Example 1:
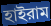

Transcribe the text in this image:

হাইরাম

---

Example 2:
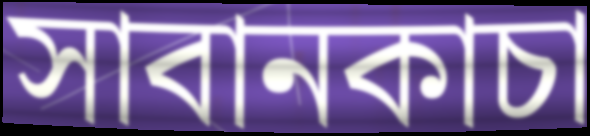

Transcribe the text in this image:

সাবানকাচা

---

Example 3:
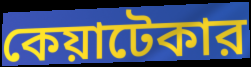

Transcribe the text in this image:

কেয়াটেকার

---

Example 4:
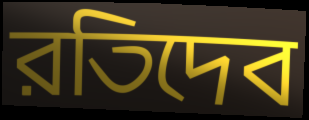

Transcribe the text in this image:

রতিদেব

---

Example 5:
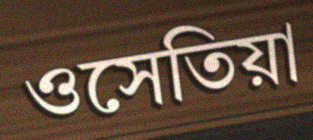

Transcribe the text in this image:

ওসেতিয়া